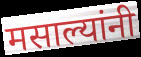
मसाल्यांनी